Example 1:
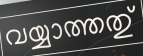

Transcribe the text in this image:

വയ്യാത്തതു്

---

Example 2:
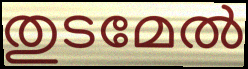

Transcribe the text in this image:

തുടമേൽ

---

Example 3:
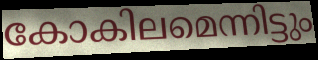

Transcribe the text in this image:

കോകിലമെന്നിട്ടും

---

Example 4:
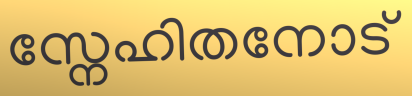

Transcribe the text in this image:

സ്നേഹിതനോട്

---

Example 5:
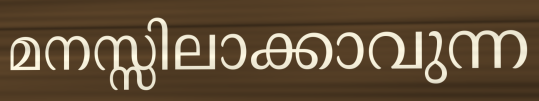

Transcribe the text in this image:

മനസ്സിലാക്കാവുന്ന